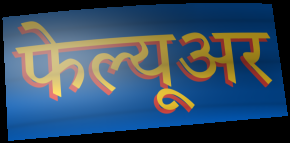
फेल्यूअर